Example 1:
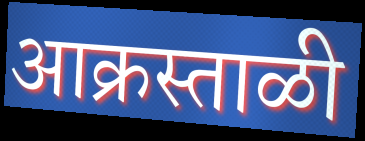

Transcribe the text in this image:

आक्रस्ताळी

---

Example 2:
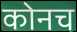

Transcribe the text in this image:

कोनच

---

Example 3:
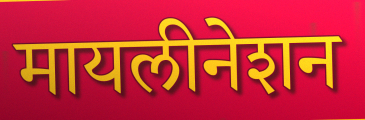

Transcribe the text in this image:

मायलीनेशन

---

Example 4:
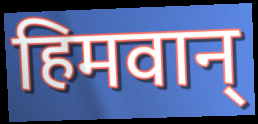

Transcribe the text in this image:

हिमवान्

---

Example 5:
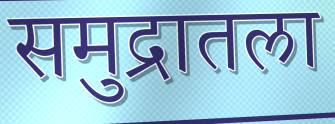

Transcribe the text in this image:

समुद्रातला